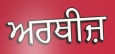
ਅਰਥੀਜ਼